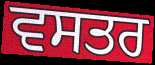
ਵਸਤਰ